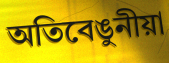
অতিবেঙুনীয়া